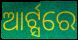
ଆର୍ଟ୍ସରେ